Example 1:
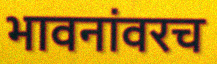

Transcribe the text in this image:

भावनांवरच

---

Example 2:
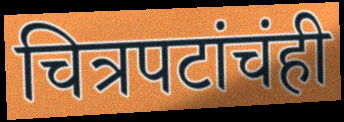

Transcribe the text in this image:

चित्रपटांचंही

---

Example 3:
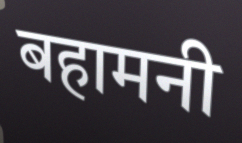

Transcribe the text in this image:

बहामनी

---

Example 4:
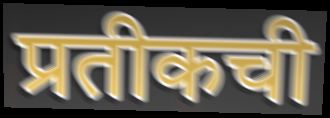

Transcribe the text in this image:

प्रतीकची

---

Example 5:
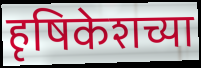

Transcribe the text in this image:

हृषिकेशच्या